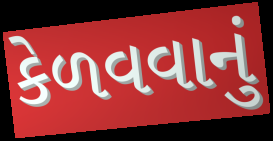
કેળવવાનું